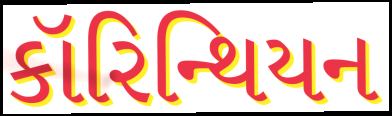
કૉરિન્થિયન